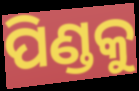
ପିଣ୍ଡକୁ